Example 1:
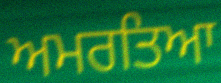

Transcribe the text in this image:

ਅਮਰਤਿਆ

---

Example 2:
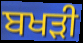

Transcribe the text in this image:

ਬਖੜੀ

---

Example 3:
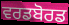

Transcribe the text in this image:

ਵਰਡਬੋਰਡ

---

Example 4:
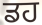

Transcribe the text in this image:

ਡਹ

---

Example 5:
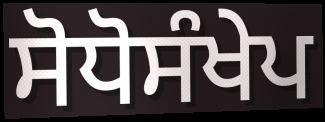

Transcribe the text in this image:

ਸੋਧੋਸੰਖੇਪ